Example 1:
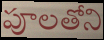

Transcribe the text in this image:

పూలతోని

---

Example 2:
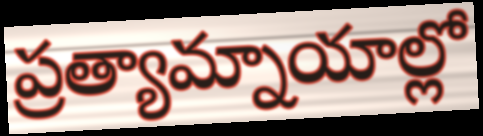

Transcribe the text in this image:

ప్రత్యామ్నాయాల్లో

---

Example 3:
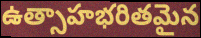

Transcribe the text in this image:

ఉత్సాహభరితమైన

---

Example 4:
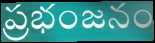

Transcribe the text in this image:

ప్రభంజనం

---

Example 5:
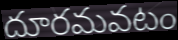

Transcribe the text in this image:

దూరమవటం